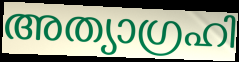
അത്യാഗ്രഹി